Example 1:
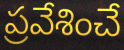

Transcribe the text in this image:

ప్రవేశించే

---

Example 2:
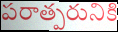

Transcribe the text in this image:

పరాత్పరునికి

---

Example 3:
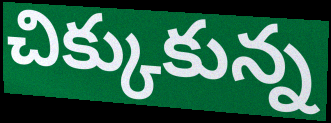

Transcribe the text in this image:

చిక్కుకున్న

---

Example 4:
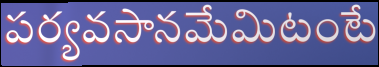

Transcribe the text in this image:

పర్యవసానమేమిటంటే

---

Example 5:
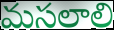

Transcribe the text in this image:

మసలాలి